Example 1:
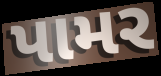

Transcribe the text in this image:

પામર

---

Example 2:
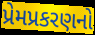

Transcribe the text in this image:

પ્રેમપ્રકરણનો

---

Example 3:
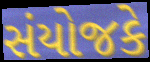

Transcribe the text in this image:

સંયોજકે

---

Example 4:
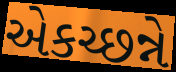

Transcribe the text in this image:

એકચ્છન્ને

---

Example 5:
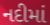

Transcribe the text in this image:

નદીમાં